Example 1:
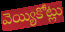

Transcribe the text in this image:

వెయ్యికోట్లు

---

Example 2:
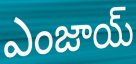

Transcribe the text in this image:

ఎంజాయ్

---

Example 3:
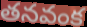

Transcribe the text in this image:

తనవంక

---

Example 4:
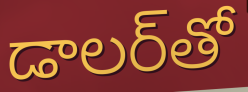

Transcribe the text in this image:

డాలర్‌తో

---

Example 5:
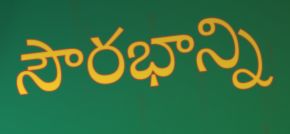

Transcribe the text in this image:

సౌరభాన్ని